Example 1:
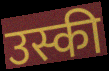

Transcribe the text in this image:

उस्‍की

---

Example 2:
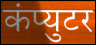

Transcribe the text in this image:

कंप्युटर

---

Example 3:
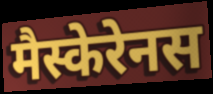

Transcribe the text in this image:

मैस्केरेनस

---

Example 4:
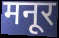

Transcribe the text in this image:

मनूर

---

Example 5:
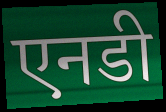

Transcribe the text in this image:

एनडी